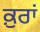
ਕ਼ੁਰਾਂ